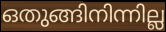
ഒതുങ്ങിനിന്നില്ല